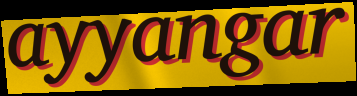
ayyangar